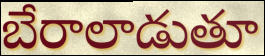
బేరాలాడుతూ